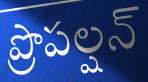
ప్రొపల్షన్